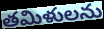
తమిళులను